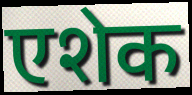
एशेक